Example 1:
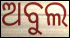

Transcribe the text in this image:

ଅବୁଲ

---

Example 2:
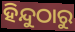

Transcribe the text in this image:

ହିନ୍ଦୁଠାରୁ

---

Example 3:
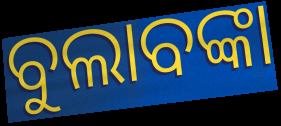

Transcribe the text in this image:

ବୁଲାବଙ୍କା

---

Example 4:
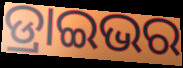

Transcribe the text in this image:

ଡ୍ରାଇଭର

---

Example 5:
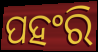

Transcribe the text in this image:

ପହଂରି